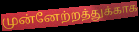
முன்னேற்றத்துக்காக